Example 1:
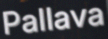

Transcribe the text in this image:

Pallava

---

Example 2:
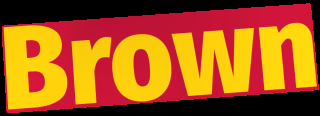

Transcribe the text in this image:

Brown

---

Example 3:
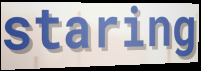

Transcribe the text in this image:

staring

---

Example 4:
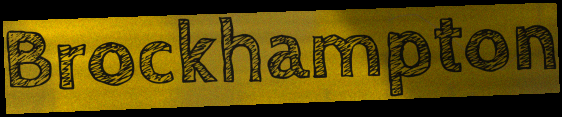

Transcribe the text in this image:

Brockhampton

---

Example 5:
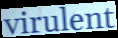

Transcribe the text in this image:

virulent